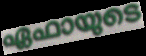
ഏഫായുടെ